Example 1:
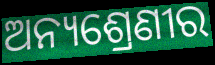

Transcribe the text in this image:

ଅନ୍ୟଶ୍ରେଣୀର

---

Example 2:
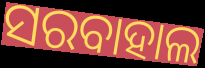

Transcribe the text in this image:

ସରବାହାଲ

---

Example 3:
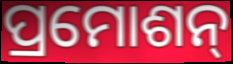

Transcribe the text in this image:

ପ୍ରମୋଶନ୍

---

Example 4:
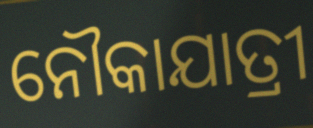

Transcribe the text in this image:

ନୌକାଯାତ୍ରୀ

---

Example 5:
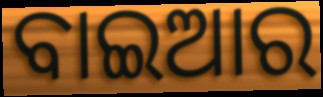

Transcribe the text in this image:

ବାଇଆର